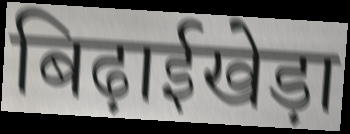
बिढ़ाईखेड़ा